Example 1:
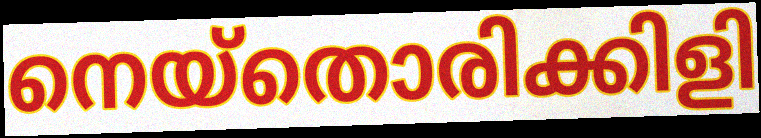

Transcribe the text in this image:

നെയ്തൊരിക്കിളി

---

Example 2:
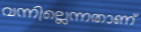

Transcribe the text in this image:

വന്നില്ലെന്നതാണ്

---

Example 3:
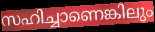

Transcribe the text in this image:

സഹിച്ചാണെങ്കിലും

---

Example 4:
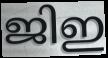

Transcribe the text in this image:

ജിഇ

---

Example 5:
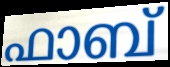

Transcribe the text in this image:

ഫാബ്